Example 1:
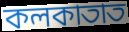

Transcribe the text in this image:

কলকাতাত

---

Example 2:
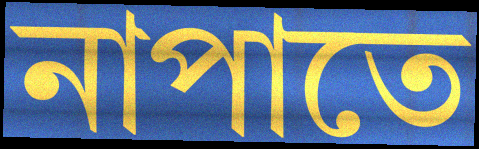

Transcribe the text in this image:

নাপাতে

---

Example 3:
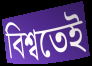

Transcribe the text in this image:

বিশ্বতেই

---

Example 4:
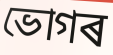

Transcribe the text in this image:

ভোগৰ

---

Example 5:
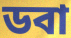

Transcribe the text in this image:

ডবা